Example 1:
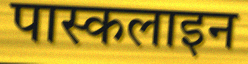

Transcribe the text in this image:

पास्कलाइन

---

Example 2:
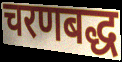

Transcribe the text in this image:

चरणबद्ध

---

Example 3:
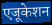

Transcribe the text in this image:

एजूकेशन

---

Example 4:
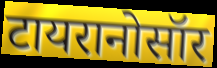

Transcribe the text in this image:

टायरानोसॉर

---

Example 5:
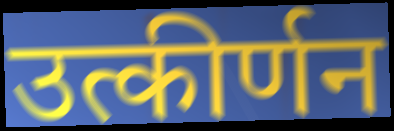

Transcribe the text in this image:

उत्कीर्णन